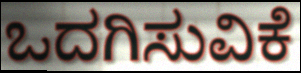
ಒದಗಿಸುವಿಕೆ